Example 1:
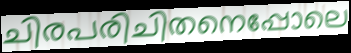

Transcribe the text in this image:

ചിരപരിചിതനെപ്പോലെ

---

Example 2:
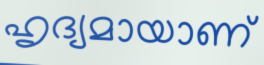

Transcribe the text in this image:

ഹൃദ്യമായാണ്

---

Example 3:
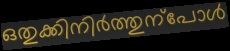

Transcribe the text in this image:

ഒതുക്കിനിർത്തുന്പോൾ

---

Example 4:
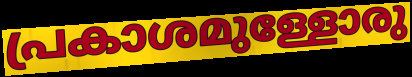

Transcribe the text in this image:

പ്രകാശമുള്ളോരു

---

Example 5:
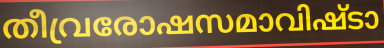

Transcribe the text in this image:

തീവ്രരോഷസമാവിഷ്ടാ